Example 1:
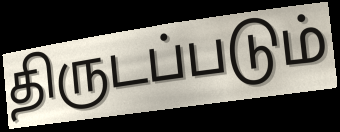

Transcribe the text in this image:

திருடப்படும்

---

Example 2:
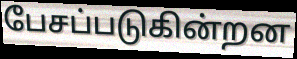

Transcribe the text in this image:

பேசப்படுகின்றன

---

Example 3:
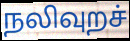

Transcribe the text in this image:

நலிவுறச்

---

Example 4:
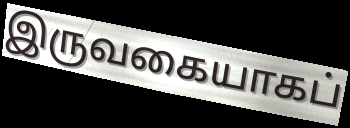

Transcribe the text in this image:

இருவகையாகப்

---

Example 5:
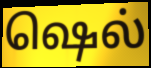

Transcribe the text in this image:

ஷெல்